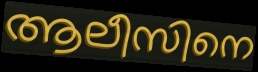
ആലീസിനെ